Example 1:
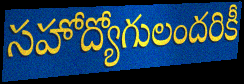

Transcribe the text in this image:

సహోద్యోగులందరికీ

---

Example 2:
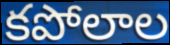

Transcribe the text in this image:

కపోలాల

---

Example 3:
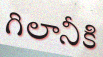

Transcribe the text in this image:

గిలానీకి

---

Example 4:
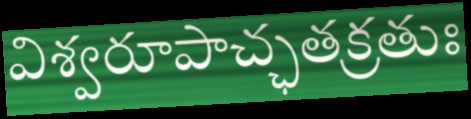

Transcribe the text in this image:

విశ్వరూపాచ్ఛతక్రతుః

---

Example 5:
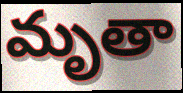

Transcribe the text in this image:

మృతా